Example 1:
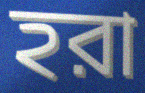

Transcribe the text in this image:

হরা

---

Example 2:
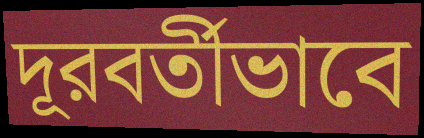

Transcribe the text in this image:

দূরবর্তীভাবে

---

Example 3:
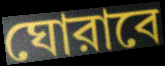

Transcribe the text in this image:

ঘোরাবে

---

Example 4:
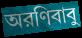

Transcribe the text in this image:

অরণিবাবু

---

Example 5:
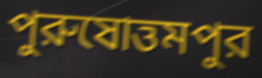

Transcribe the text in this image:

পুরুষোত্তমপুর